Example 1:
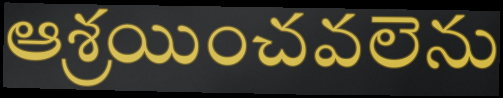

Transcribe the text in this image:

ఆశ్రయించవలెను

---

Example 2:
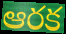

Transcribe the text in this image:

ఆరక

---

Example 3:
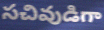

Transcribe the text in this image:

సచివుడిగా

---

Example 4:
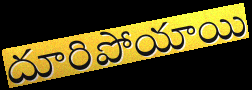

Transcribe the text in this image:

దూరిపోయాయి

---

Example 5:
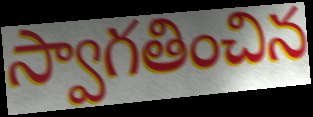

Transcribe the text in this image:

స్వాగతించిన